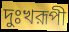
দুঃখরূপী